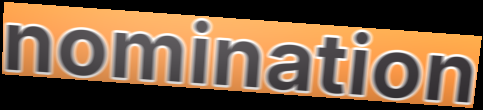
nomination